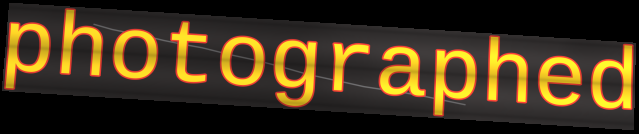
photographed